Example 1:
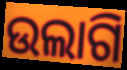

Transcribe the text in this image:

ଉଲାଗି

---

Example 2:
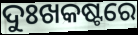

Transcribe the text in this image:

ଦୁଃଖକଷ୍ଟରେ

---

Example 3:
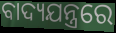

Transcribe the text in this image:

ବାଦ୍ୟଯନ୍ତ୍ରରେ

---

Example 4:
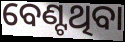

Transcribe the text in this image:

ବେଣ୍ଟଥିବା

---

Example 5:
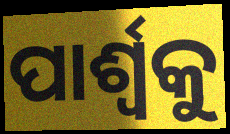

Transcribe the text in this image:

ପାର୍ଶ୍ଵକୁ